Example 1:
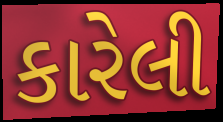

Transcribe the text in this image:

કારેલી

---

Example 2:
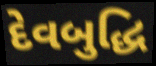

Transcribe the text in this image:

દેવબુદ્ધિ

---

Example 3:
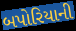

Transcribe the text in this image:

બપોરિયાની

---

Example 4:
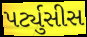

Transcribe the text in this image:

પર્ટ્યુસીસ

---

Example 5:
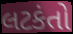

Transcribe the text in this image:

લટકંતો